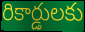
రికార్డులకు